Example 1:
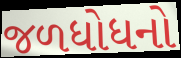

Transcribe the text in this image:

જળધોધનો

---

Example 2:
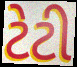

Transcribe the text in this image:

ટેટી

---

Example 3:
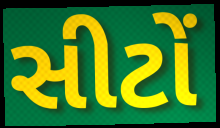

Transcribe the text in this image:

સીટોં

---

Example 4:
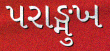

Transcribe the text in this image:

પરાઙ્મુખ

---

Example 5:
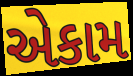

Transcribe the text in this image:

એકામ